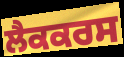
ਲੈਕਕਰਸ